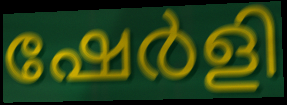
ഷേർളി